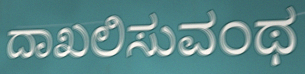
ದಾಖಲಿಸುವಂಥ